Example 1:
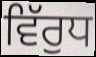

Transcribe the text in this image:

ਵਿੱਰੁਧ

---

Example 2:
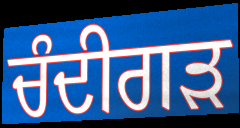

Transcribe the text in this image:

ਚੰਦੀਗੜ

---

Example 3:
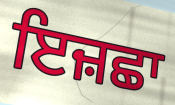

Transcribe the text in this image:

ਇਜ਼ਛਾ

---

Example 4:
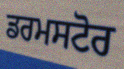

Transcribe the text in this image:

ਡਰਮਸਟੋਰ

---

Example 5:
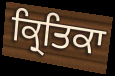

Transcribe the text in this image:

ਕ੍ਰਿਤਿਕਾ